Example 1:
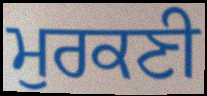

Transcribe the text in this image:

ਮੁਰਕਣੀ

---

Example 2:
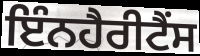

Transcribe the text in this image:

ਇੰਨਹੈਰੀਟੈੰਸ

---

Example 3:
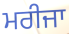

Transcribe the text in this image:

ਮਰੀਜਾ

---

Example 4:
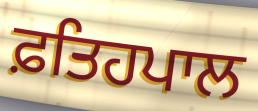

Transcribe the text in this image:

ਫ਼ਤਿਹਪਾਲ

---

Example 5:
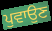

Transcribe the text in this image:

ਪੁਵਾਉਣ